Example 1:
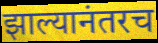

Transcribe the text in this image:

झाल्यानंतरच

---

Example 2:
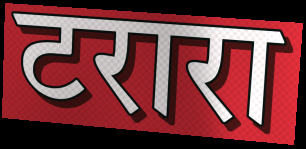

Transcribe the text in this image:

टरारा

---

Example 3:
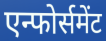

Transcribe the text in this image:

एन्फोर्समेंट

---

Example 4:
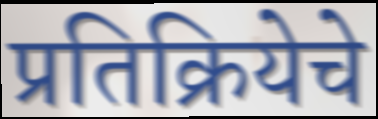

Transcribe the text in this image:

प्रतिक्रियेचे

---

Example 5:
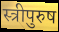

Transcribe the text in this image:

स्त्रीपुरुष